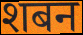
शबन